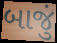
બાજું